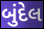
બુંદેલ